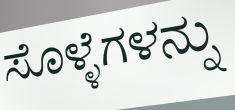
ಸೊಳ್ಳೆಗಳನ್ನು